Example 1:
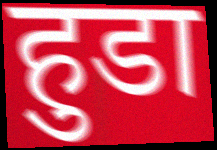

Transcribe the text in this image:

हुडा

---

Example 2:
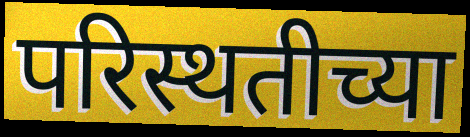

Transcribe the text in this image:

परिस्थतीच्या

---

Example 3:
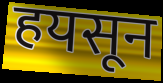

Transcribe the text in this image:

हयसून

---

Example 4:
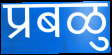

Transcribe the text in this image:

प्रबळु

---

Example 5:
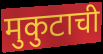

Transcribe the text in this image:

मुकुटाची